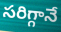
సరిగ్గానే